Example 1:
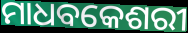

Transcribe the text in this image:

ମାଧବକେଶରୀ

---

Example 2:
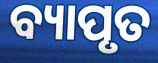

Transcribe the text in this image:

ବ୍ୟାପୃତ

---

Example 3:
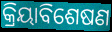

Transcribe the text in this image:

କ୍ରିୟାବିଶେଷଣ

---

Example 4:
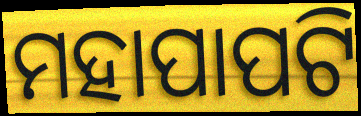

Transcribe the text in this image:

ମହାପାପଟି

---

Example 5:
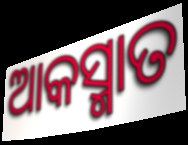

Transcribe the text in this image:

ଆକସ୍ମାତ